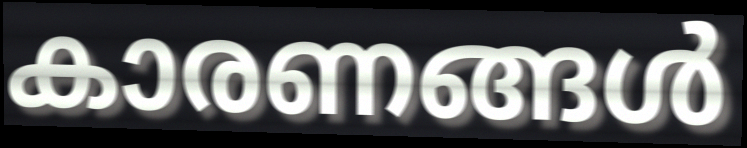
കാരണങ്ങൾ